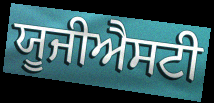
ਯੂਜੀਐਸਟੀ